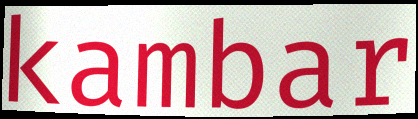
kambar